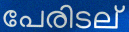
പേരിടല്